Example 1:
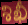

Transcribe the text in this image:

శిఖీ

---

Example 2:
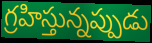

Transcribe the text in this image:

గ్రహిస్తున్నప్పుడు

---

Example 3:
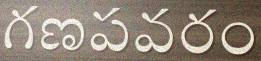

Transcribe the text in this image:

గణపవరం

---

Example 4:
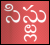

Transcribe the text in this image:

సిస్ట్లు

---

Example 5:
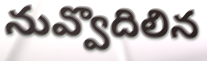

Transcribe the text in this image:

నువ్వొదిలిన